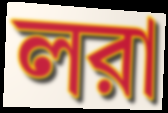
লরা